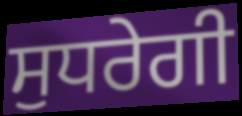
ਸੁਧਰੇਗੀ